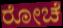
ರೋಚೆ